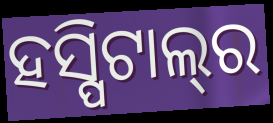
ହସ୍ପିଟାଲ୍‌ର